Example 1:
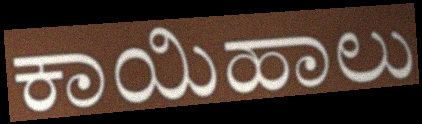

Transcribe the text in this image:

ಕಾಯಿಹಾಲು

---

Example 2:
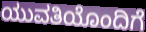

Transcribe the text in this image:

ಯುವತಿಯೊಂದಿಗೆ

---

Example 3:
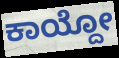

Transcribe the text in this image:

ಕಾಯ್ದೋ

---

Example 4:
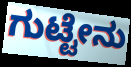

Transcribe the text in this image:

ಗುಟ್ಟೇನು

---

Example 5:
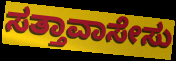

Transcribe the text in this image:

ಸತ್ತಾವಾಸೇಸು